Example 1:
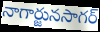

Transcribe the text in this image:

నాగార్జునసాగర్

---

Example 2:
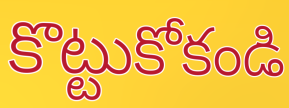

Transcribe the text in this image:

కొట్టుకోకండి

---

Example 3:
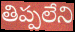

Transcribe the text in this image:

తిప్పలేని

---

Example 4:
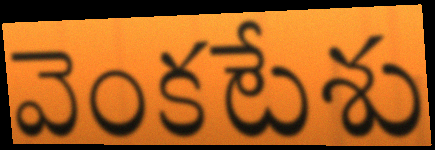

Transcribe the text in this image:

వెంకటేశు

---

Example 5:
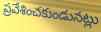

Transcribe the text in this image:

ప్రవేశించకుండునట్లు